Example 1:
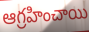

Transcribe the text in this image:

ఆగ్రహించాయి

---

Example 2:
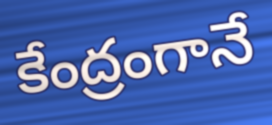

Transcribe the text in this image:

కేంద్రంగానే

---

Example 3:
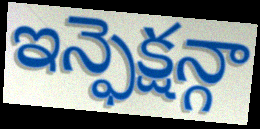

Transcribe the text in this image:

ఇన్ఫెక్షన్గా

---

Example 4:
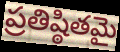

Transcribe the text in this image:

ప్రతిష్ఠితమై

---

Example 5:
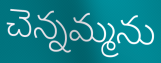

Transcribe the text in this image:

చెన్నమ్మను